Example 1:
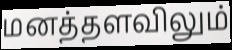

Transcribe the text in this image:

மனத்தளவிலும்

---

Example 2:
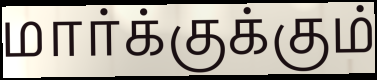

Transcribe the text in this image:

மார்க்குக்கும்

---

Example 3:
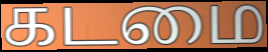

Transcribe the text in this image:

கடமை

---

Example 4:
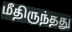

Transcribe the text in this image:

மீதிருந்தது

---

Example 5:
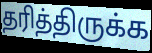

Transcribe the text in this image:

தரித்திருக்க